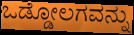
ಒಡ್ಡೋಲಗವನ್ನು